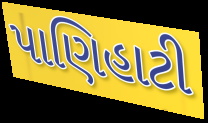
પાણિહાટી